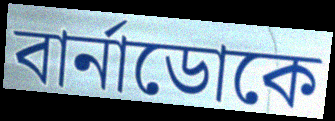
বার্নাডোকে